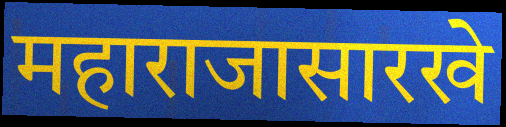
महाराजासारखे